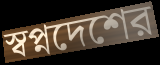
স্বপ্নদেশের